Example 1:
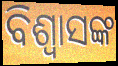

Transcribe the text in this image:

ବିଶ୍ୱାସଙ୍କ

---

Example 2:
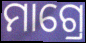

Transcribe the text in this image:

ମାଗ୍ରେ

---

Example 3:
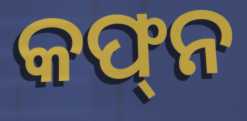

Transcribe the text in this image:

କଫ୍‌ନ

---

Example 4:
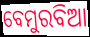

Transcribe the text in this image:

ବେମୁରବିଆ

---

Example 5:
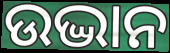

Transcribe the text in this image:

ଉଦ୍ଭାନ